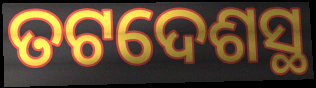
ତଟଦେଶସ୍ଥ